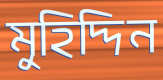
মুহিদ্দিন